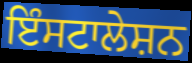
ਇੰਸਟਾਲੇਸ਼ਨ